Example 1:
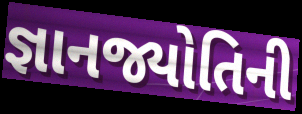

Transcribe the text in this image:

જ્ઞાનજ્યોતિની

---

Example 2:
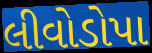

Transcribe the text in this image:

લીવોડોપા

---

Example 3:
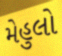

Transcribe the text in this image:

મેહુલો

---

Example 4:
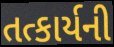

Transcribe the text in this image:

તત્કાર્યની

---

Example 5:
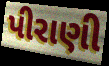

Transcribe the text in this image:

પીરાણી